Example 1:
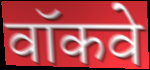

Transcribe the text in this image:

वॉकवे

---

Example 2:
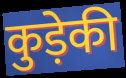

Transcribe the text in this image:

कुड़ेकी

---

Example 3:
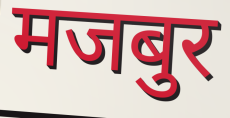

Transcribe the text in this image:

मजबुर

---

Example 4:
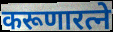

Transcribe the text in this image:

करूणारत्ने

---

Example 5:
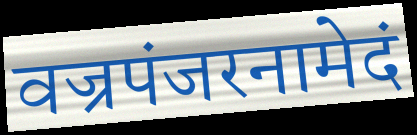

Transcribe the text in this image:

वज्रपंजरनामेदं